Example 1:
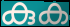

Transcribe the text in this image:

കുക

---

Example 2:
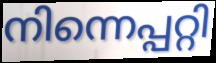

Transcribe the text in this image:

നിന്നെപ്പറ്റി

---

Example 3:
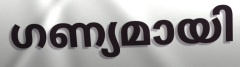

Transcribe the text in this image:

ഗണ്യമായി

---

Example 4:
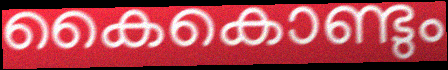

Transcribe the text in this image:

കൈകൊണ്ടും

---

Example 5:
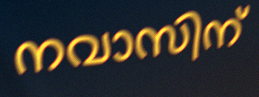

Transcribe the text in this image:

നവാസിന്